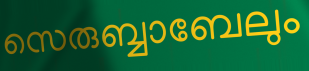
സെരുബ്ബാബേലും